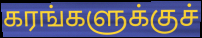
கரங்களுக்குச்